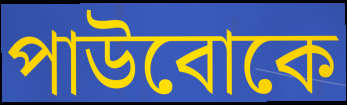
পাউবোকে